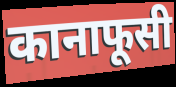
कानाफूसी